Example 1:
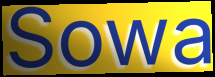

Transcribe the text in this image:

Sowa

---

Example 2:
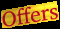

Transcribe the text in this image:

Offers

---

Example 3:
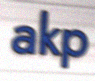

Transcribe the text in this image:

akp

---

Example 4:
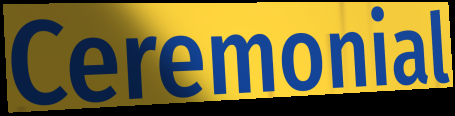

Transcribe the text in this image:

Ceremonial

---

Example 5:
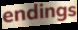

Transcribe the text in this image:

endings